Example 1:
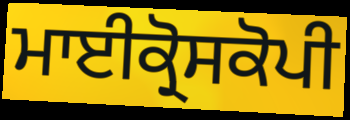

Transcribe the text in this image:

ਮਾਈਕ੍ਰੋਸਕੋਪੀ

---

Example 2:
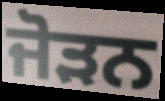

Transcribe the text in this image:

ਜੋੜਨ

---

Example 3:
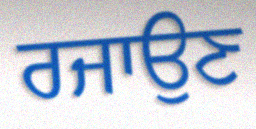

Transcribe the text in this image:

ਰਜਾਉਣ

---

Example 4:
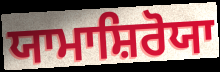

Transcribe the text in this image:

ਯਾਮਾਸ਼ਿਰੋਯਾ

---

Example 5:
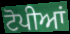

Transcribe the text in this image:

ਟੋਪੀਆਂ